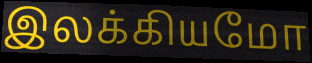
இலக்கியமோ